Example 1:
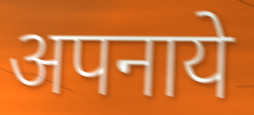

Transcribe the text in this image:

अपनाये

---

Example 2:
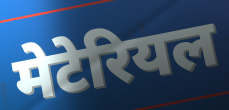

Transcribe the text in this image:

मेटेरियल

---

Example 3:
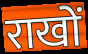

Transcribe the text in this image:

राखों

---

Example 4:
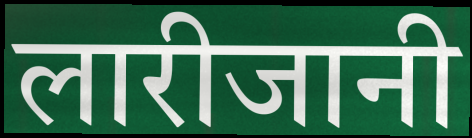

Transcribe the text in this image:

लारीजानी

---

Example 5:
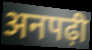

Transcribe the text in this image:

अनपढ़ी